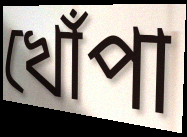
খোঁপা